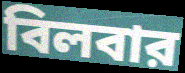
বিলবার